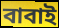
বাবাই